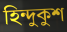
হিন্দুকুশ